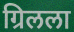
ग्रिलला